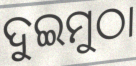
ଦୁଇମୁଠା